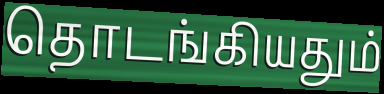
தொடங்கியதும்